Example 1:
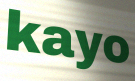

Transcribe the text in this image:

kayo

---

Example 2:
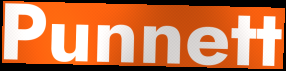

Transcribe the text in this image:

Punnett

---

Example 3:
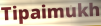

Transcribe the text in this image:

Tipaimukh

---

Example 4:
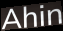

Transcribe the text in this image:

Ahin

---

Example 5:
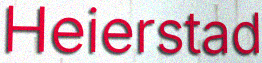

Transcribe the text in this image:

Heierstad